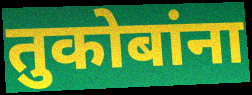
तुकोबांना